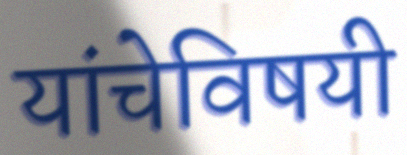
यांचेविषयी